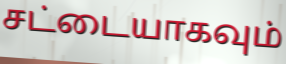
சட்டையாகவும்